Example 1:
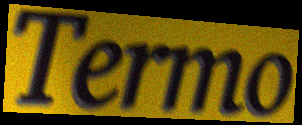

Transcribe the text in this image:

Termo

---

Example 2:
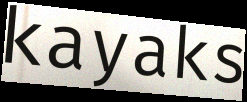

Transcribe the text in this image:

kayaks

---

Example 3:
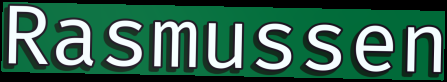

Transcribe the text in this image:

Rasmussen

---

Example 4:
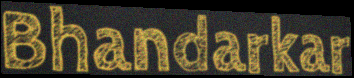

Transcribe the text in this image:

Bhandarkar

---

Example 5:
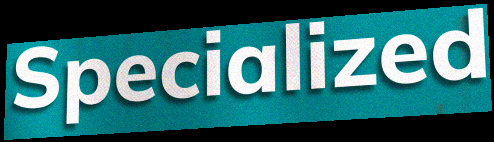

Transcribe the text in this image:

Specialized